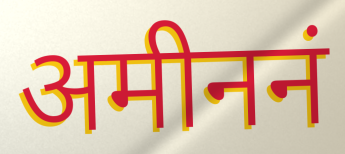
अमीननं